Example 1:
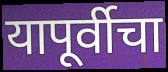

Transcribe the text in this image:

यापूर्वीचा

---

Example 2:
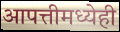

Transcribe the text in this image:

आपत्तीमध्येही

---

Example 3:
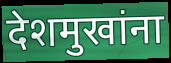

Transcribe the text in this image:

देशमुखांना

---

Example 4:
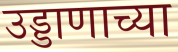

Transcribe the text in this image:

उड्डाणाच्या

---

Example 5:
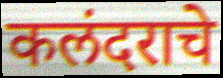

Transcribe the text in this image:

कलंदराचे